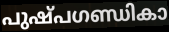
പുഷ്പഗണ്ഡികാ